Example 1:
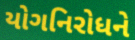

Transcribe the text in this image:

યોગનિરોધને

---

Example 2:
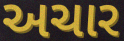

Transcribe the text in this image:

અચાર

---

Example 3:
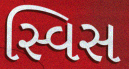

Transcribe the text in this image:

સ્વિસ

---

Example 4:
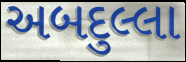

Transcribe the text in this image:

અબદુલ્લા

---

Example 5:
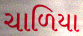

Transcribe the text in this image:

ચાળિયા